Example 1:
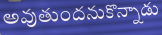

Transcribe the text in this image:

అవుతుందనుకొన్నాడు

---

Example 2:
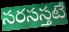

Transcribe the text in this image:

సరసస్తటే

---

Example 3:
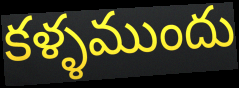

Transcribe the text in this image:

కళ్ళముందు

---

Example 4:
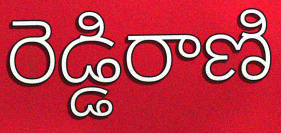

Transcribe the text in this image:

రెడ్డిరాణి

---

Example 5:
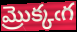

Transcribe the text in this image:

మ్రొక్కఁగ